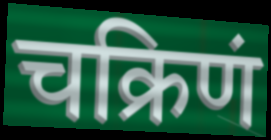
चक्रिणं